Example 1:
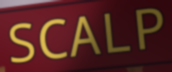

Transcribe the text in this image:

SCALP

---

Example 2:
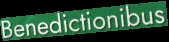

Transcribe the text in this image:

Benedictionibus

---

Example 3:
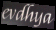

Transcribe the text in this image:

evdhya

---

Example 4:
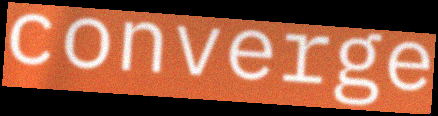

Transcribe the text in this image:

converge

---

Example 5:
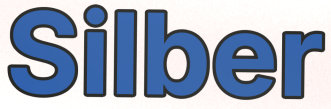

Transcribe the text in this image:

Silber